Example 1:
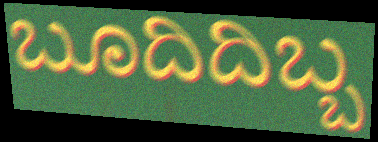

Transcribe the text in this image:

ಬೂದಿದಿಬ್ಬ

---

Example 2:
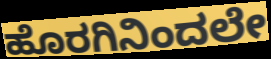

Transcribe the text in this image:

ಹೊರಗಿನಿಂದಲೇ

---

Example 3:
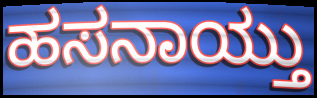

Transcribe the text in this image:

ಹಸನಾಯ್ತು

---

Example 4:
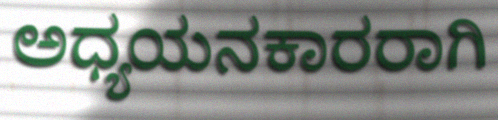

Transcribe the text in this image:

ಅಧ್ಯಯನಕಾರರಾಗಿ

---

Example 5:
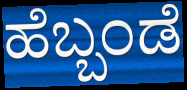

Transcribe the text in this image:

ಹೆಬ್ಬಂಡೆ